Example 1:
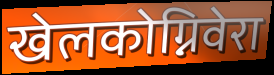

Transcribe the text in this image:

खेलकोग्निवेरा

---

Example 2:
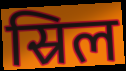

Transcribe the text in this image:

स्रिल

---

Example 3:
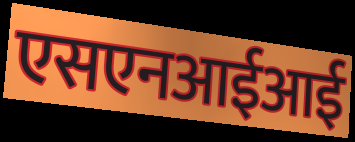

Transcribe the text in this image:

एसएनआईआई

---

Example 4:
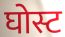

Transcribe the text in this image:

घोस्ट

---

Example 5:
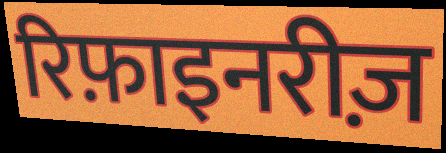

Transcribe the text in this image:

रिफ़ाइनरीज़